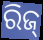
ରିଜ୍